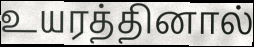
உயரத்தினால்